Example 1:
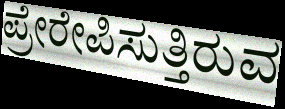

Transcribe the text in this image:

ಪ್ರೇರೇಪಿಸುತ್ತಿರುವ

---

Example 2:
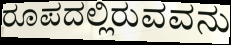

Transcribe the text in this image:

ರೂಪದಲ್ಲಿರುವವನು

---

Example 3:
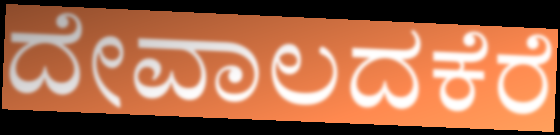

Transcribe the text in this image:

ದೇವಾಲದಕೆರೆ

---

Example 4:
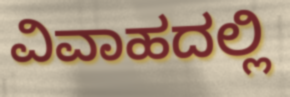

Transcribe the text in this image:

ವಿವಾಹದಲ್ಲಿ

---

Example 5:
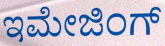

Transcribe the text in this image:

ಇಮೇಜಿಂಗ್